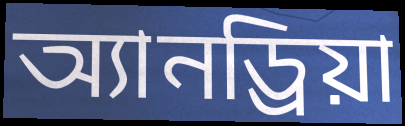
অ্যানড্রিয়া